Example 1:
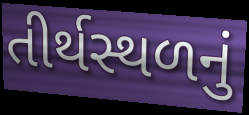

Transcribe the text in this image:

તીર્થસ્થળનું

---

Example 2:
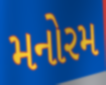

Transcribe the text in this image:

મનોરમ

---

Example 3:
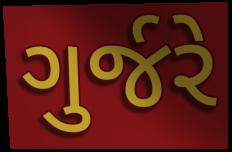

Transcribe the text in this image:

ગુર્જરે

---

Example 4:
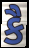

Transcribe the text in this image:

કૈ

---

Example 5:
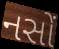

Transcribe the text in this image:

નસોં